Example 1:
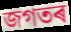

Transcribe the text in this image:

জগতৰ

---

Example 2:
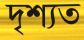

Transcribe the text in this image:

দৃশ্যত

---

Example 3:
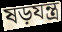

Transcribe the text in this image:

ষড়যন্ত্ৰ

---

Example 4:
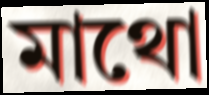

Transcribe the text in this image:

মাথো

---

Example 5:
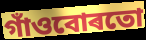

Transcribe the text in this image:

গাঁওবোৰতো